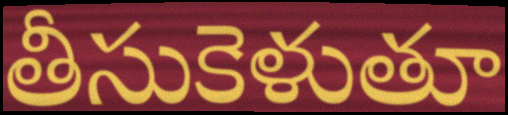
తీసుకెళుతూ